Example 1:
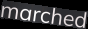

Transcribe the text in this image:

marched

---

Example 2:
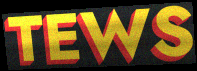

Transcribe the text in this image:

TEWS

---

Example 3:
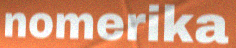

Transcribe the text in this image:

nomerika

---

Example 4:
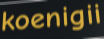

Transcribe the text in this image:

koenigii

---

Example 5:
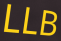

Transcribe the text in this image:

LLB